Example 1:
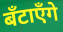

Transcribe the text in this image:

बँटाएँगे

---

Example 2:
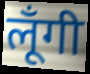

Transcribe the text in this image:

लूँगी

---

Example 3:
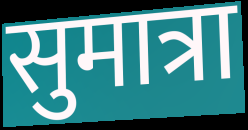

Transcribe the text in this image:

सुमात्रा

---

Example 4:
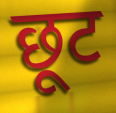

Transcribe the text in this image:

छूट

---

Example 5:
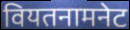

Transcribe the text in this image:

वियतनामनेट